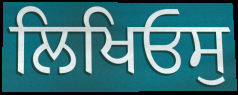
ਲਿਖਿਓਸੁ